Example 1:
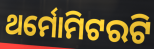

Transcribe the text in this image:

ଥର୍ମୋମିଟରଟି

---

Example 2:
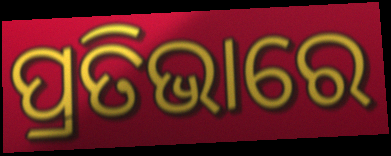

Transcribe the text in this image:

ପ୍ରତିଭାରେ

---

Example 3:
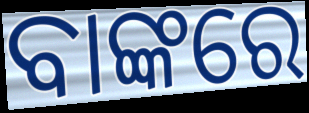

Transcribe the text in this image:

ବାଙ୍କରେ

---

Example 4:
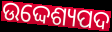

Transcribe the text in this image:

ଉଦ୍ଦେଶ୍ୟପଦ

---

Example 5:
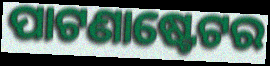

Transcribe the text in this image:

ପାଟଣାଷ୍ଟେଟର